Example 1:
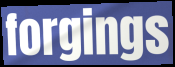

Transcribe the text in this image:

forgings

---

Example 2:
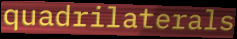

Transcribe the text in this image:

quadrilaterals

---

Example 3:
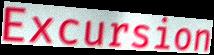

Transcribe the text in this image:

Excursion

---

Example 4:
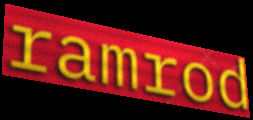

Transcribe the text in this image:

ramrod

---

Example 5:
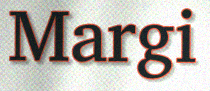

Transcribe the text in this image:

Margi